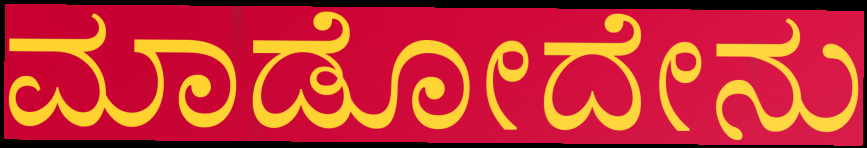
ಮಾಡೋದೇನು